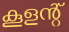
കൂളന്റ്